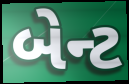
બેન્ટ